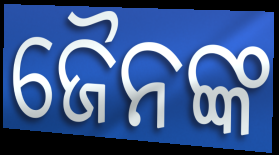
ଜୈନଙ୍କ